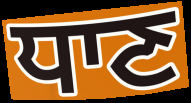
ਧਾਣ